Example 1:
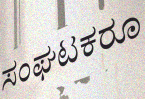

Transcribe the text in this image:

ಸಂಘಟಕರೂ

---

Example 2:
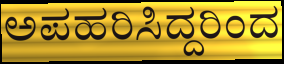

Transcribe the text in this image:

ಅಪಹರಿಸಿದ್ದರಿಂದ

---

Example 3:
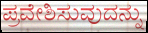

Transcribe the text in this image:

ಪ್ರವೇಶಿಸುವುದನ್ನು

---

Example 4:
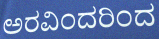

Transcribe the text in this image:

ಅರವಿಂದರಿಂದ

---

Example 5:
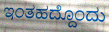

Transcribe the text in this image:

ಇಂತಹದ್ದೊಂದು